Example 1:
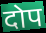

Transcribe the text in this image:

दोप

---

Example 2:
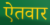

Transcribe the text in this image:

ऐतवार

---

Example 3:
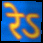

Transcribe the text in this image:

रेऽ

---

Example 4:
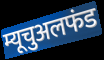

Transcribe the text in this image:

म्यूचुअलफंड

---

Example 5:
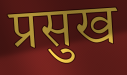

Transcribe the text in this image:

प्रसुख